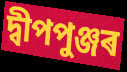
দ্বীপপুঞ্জৰ